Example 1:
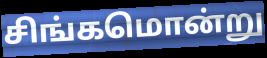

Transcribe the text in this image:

சிங்கமொன்று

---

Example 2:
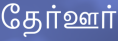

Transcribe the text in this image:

தேர்ஊர்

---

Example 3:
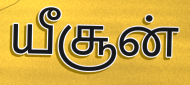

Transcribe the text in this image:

யீசூன்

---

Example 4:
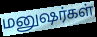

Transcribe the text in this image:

மனுஷர்கள்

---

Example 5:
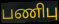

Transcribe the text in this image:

பணிபு